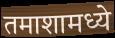
तमाशामध्ये